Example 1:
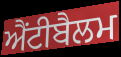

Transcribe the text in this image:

ਐਂਟੀਬੈਲਮ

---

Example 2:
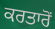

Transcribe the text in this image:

ਕਰਤਾਰੋਂ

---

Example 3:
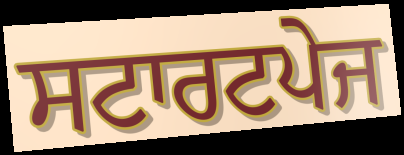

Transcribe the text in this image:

ਸਟਾਰਟਪੇਜ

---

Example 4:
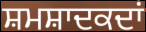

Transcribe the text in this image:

ਸ਼ਮਸ਼ਾਦਕਦਾਂ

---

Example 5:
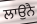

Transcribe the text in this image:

ਲਾਉਨੈ